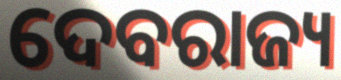
ଦେବରାଜ୍ୟ